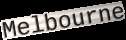
Melbourne